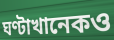
ঘণ্টাখানেকও